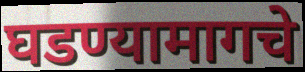
घडण्यामागचे